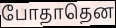
போதாதென